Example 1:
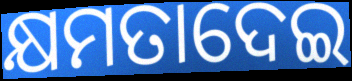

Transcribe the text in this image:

କ୍ଷମତାଦେଇ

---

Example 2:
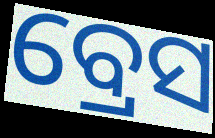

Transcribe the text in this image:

ବ୍ରେସ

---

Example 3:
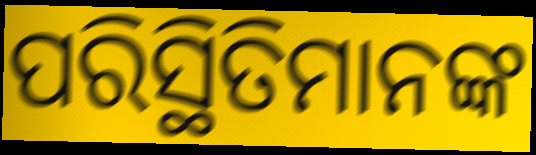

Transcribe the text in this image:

ପରିସ୍ଥିତିମାନଙ୍କ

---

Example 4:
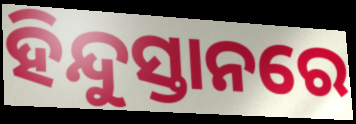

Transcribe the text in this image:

ହିନ୍ଦୁସ୍ତାନରେ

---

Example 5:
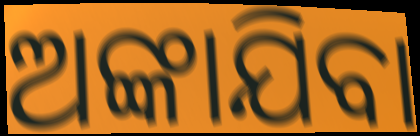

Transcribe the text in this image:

ଅଙ୍କାଯିବା